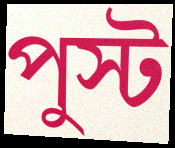
পুস্ট